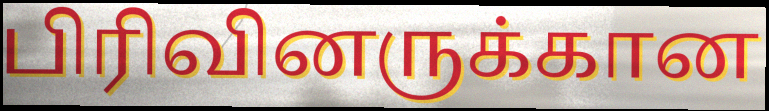
பிரிவினருக்கான